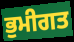
ਭੁਮੀਗਤ